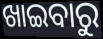
ଖାଇବାରୁ